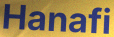
Hanafi